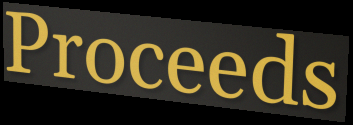
Proceeds